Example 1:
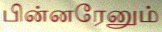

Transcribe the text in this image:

பின்னரேனும்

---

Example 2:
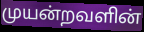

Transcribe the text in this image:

முயன்றவளின்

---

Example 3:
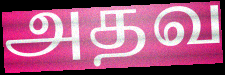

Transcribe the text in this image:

அதவ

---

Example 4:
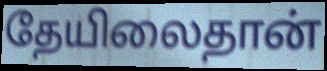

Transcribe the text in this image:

தேயிலைதான்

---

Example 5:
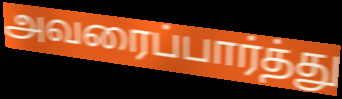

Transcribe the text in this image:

அவரைப்பார்த்து